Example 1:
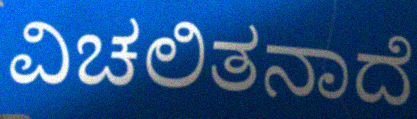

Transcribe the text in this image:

ವಿಚಲಿತನಾದೆ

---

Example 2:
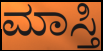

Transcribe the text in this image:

ಮಾಸ್ತಿ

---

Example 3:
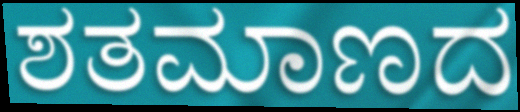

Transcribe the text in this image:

ಶತಮಾಣದ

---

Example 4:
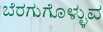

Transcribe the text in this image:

ಬೆರಗುಗೊಳ್ಳುವ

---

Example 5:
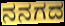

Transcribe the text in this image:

ನನಗದ